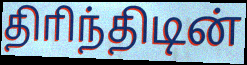
திரிந்திடின்